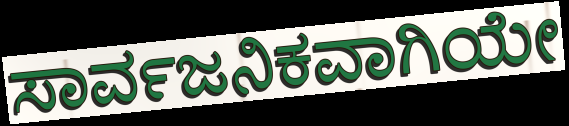
ಸಾರ್ವಜನಿಕವಾಗಿಯೇ